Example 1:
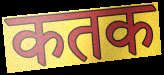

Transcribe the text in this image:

कतक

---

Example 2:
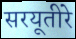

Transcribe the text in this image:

सरयूतीरे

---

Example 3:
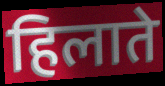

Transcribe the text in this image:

हिलाते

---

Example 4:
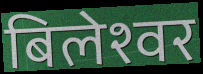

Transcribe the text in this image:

बिलेश्वर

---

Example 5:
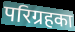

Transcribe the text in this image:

परिग्रहका